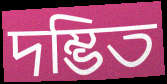
দম্ভিত